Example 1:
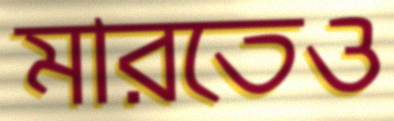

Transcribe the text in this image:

মারতেও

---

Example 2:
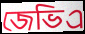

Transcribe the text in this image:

জেভিএ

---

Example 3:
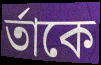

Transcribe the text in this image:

র্তাকে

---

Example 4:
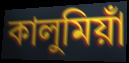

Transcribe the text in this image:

কালুমিয়াঁ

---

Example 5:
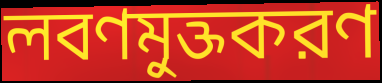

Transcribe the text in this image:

লবণমুক্তকরণ